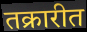
तक्रारीत